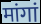
मांगां